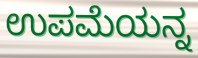
ಉಪಮೆಯನ್ನ